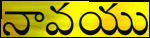
నావయు